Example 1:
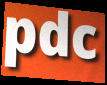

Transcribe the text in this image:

pdc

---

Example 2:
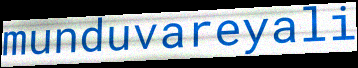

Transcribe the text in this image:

munduvareyali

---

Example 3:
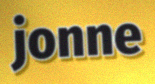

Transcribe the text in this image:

jonne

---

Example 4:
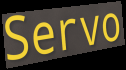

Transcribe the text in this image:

Servo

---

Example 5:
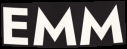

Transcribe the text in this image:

EMM